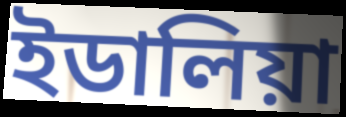
ইডালিয়া